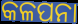
କଳପନା